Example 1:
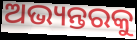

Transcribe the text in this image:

ଅଭ୍ୟନ୍ତରକୁ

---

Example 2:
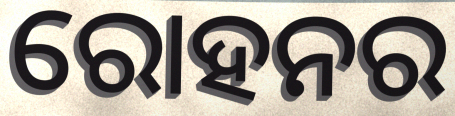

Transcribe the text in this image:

ରୋହନର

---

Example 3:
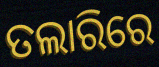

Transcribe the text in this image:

ତଲାରିରେ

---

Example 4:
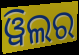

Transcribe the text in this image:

ୱିଲର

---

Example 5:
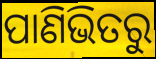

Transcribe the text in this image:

ପାଣିଭିତରୁ